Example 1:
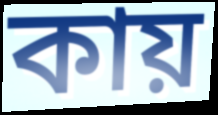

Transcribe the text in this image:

কায়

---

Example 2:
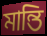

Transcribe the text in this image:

মান্তি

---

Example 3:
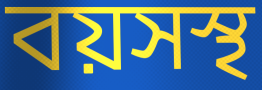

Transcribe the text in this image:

বয়সস্থ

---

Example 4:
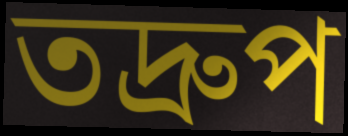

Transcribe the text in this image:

তদ্ৰুপ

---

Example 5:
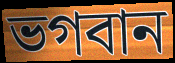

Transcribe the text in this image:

ভগবান